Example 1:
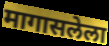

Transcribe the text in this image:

मागासलेला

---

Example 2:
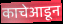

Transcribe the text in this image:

काचेआडून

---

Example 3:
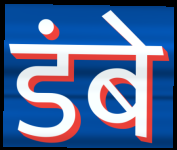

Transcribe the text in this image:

डंबे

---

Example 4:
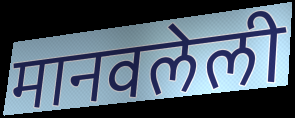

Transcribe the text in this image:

मानवलेली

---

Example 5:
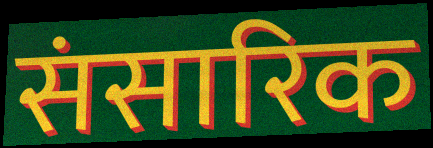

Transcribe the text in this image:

संसारिक